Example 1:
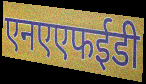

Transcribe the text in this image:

एनएएफईडी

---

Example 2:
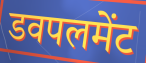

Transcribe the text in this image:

डवपलमेंट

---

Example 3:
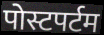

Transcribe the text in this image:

पोस्टपर्टम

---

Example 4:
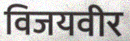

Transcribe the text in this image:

विजयवीर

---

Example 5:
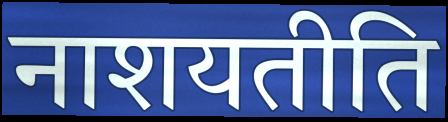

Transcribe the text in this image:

नाशयतीति